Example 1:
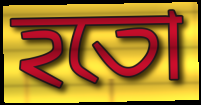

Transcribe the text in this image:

হতো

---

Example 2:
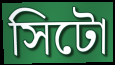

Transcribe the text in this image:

সিটো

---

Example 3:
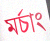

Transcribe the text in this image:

মৰ্চাং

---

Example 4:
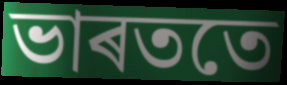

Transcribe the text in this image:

ভাৰততে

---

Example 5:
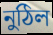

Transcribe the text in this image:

নুঠিল